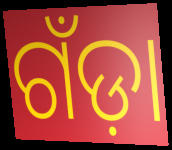
ଗଁଡ଼ା